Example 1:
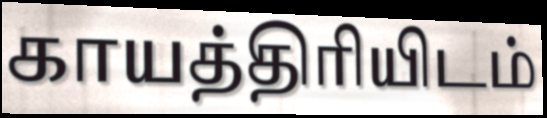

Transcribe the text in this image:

காயத்திரியிடம்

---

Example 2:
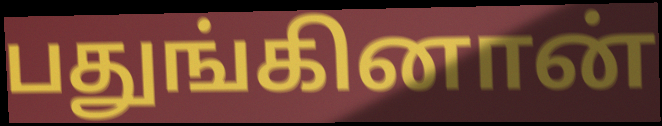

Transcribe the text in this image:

பதுங்கினான்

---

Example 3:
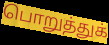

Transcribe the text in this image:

பொறுத்துக்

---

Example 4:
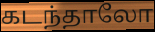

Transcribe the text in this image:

கடந்தாலோ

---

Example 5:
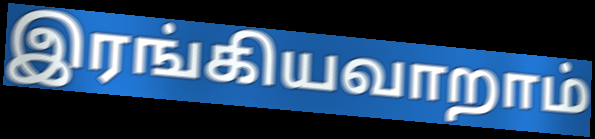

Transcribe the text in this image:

இரங்கியவாறாம்